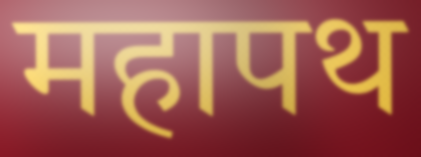
महापथ